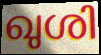
ഖുശി